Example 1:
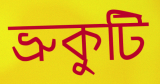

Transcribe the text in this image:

ভ্ৰুকুটি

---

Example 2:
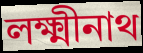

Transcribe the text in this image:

লক্ষ্মীনাথ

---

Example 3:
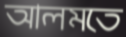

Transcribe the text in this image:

আলমতে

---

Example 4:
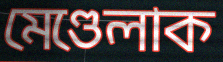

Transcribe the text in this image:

মেণ্ডেলাক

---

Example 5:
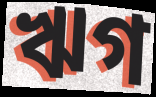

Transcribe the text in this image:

ঋগ